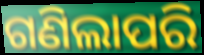
ଗଣିଲାପରି